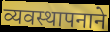
व्यवस्थापनाने